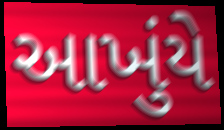
આખુંયે